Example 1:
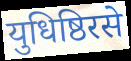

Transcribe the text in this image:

युधिष्ठिरसे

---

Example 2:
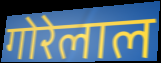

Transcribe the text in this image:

गोरेलाल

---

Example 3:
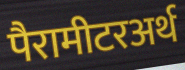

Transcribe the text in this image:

पैरामीटरअर्थ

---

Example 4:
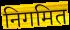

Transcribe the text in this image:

निगमित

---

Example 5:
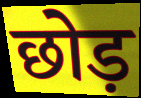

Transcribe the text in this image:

छोड़